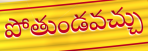
పోతుండవచ్చు